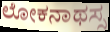
ಲೋಕನಾಥಸ್ಸ